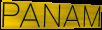
PANAM